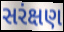
સરંક્ષણ